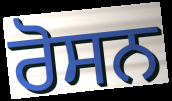
ਰੋਸਨ